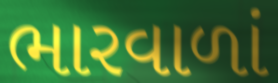
ભારવાળાં